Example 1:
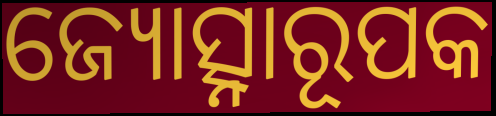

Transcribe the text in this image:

ଜ୍ୟୋତ୍ସ୍ନାରୂପକ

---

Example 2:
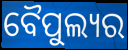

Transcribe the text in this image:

ବୈପୁଲ୍ୟର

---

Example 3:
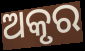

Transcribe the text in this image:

ଅକୃର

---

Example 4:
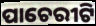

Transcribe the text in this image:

ପାଚେରୀଟି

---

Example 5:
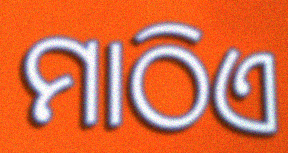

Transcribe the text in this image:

ମାଠିଏ